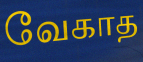
வேகாத